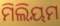
ମିଲିୟମ